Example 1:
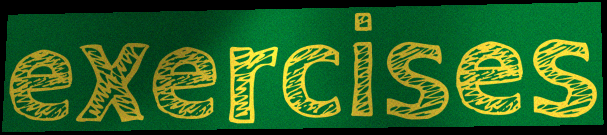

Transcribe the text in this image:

exercises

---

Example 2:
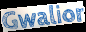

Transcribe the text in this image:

Gwalior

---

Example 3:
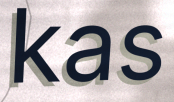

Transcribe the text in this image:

kas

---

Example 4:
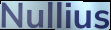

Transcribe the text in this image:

Nullius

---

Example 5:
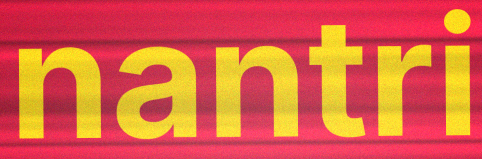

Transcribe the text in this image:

nantri